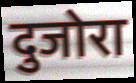
दुजोरा